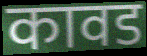
कावड